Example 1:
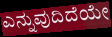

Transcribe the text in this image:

ಎನ್ನುವುದಿದೆಯೇ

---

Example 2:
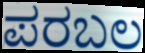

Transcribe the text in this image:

ಪರಬಲ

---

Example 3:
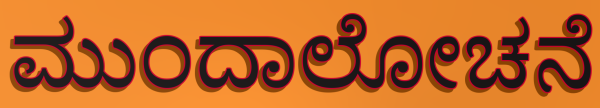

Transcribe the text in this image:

ಮುಂದಾಲೋಚನೆ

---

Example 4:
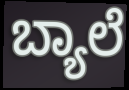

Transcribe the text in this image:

ಬ್ಯಾಲೆ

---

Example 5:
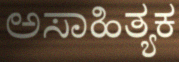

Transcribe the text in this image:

ಅಸಾಹಿತ್ಯಕ